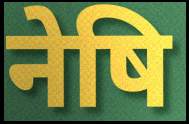
नेषि